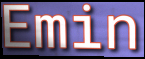
Emin